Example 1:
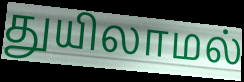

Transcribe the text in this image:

துயிலாமல்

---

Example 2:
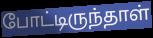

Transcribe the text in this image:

போட்டிருந்தாள்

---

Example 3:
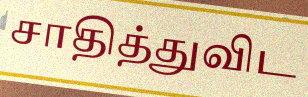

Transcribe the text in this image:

சாதித்துவிட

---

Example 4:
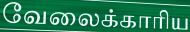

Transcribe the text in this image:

வேலைக்காரிய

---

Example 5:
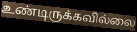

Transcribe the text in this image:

உண்டிருக்கவில்லை